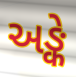
અઙ્કે